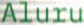
Aluru